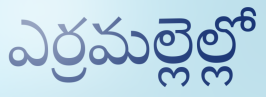
ఎర్రమల్లెల్లో